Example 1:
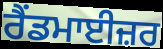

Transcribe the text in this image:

ਰੈਂਡਮਾਈਜ਼ਰ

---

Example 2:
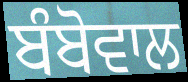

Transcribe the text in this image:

ਬੰਬੋਵਾਲ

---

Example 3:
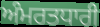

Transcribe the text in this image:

ਅੰਮਰਤਧਾਰੀ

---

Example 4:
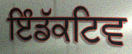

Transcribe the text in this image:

ਇੰਡੱਕਟਿਵ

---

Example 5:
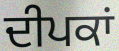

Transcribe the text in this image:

ਦੀਪਕਾਂ